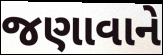
જણાવાને